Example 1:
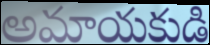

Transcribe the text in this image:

అమాయకుడి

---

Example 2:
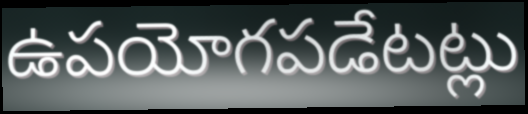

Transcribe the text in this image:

ఉపయోగపడేటట్లు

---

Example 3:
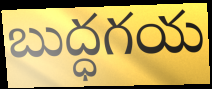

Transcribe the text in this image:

బుద్ధగయ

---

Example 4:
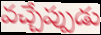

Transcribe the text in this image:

వచ్చేప్పుడు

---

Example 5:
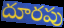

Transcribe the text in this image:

దూరపు